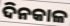
ଦିନକାଳ